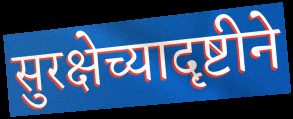
सुरक्षेच्यादृष्टीने